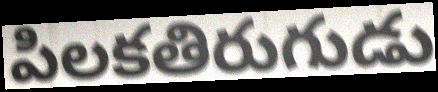
పిలకతిరుగుడు